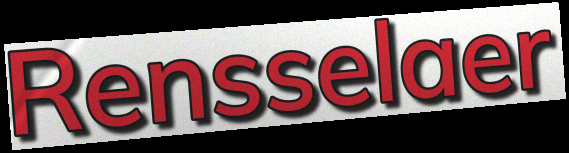
Rensselaer